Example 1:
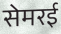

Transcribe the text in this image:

सेमरई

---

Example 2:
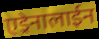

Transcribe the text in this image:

एड्रेनालाईन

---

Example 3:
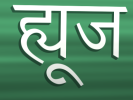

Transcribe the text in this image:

ह्यूज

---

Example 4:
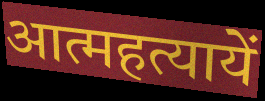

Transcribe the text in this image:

आत्महत्यायें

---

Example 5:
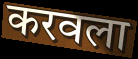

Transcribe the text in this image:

करवला